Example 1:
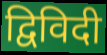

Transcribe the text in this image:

द्विविदी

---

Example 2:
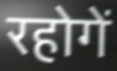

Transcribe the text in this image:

रहोगें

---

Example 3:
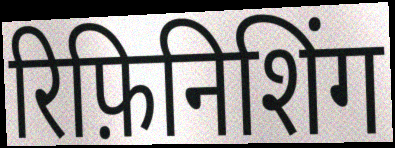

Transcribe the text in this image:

रिफ़िनिशिंग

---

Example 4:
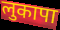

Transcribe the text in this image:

लुकापा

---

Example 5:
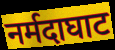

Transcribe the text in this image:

नर्मदाघाट